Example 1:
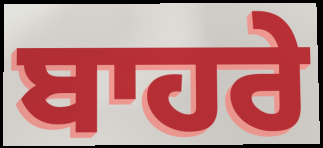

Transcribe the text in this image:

ਬਾਹਰੇ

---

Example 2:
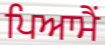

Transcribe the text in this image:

ਪਿਆਮੈਂ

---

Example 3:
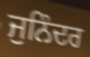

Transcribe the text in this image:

ਜੁਨਿੰਦਰ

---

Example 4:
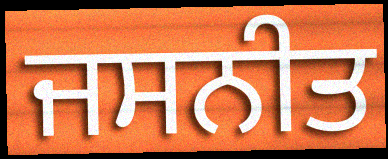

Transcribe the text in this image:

ਜਸਨੀਤ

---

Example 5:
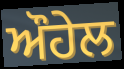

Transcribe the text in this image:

ਔਹੇਲ